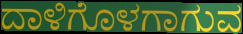
ದಾಳಿಗೊಳಗಾಗುವ